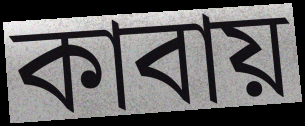
কাবায়